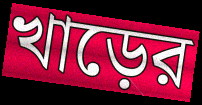
খাড়ের